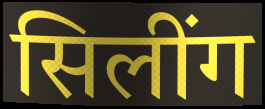
सिलींग